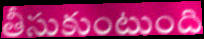
తీసుకుంటుంది